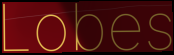
Lobes